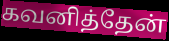
கவனித்தேன்